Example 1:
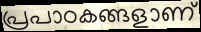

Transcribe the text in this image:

പ്രപാഠകങ്ങളാണ്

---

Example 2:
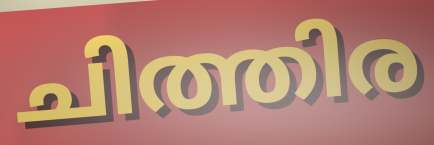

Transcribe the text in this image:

ചിത്തിര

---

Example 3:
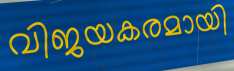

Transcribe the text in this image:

വിജയകരമായി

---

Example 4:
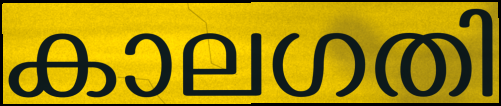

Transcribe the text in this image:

കാലഗതി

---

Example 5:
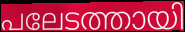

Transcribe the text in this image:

പലേടത്തായി